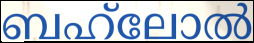
ബഹ്‌ലോൽ